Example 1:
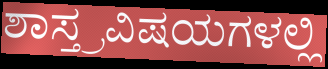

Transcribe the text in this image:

ಶಾಸ್ತ್ರವಿಷಯಗಳಲ್ಲಿ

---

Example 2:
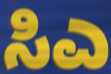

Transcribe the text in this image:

ಸಿಎ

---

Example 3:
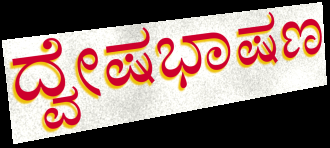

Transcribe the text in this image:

ದ್ವೇಷಭಾಷಣ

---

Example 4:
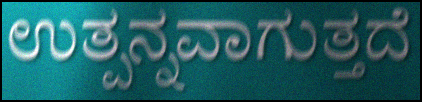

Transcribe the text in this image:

ಉತ್ಪನ್ನವಾಗುತ್ತದೆ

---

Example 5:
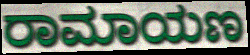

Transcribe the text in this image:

ರಾಮಾಯಣ